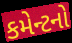
કમેન્ટનો